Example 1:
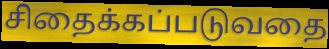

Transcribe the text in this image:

சிதைக்கப்படுவதை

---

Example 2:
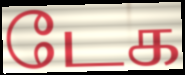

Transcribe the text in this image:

டேக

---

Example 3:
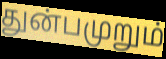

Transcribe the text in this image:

துன்பமுறும்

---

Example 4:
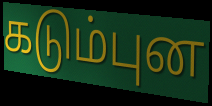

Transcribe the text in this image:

கடும்புன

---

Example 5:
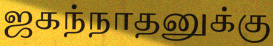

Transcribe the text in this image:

ஜகந்நாதனுக்கு